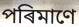
পৰিমাণে